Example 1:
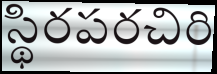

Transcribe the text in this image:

స్థిరపరచిరి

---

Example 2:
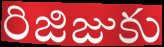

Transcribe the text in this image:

రిజిజుకు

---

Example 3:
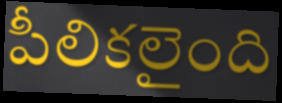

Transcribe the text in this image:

పీలికలైంది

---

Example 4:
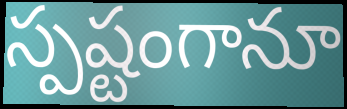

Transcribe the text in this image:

స్పష్టంగానూ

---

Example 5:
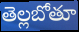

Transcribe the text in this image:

తెల్లబోతూ